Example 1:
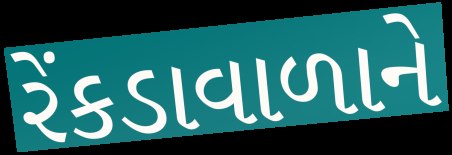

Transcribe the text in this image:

રેંકડાવાળાને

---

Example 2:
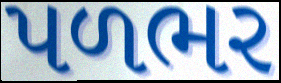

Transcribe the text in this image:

પળભર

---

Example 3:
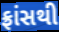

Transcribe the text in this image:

ફ્રાંસથી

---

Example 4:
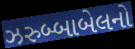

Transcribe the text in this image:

ઝરુબ્બાબેલનો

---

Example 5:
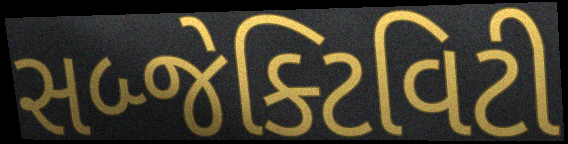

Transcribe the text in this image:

સબ્જેક્ટિવિટી